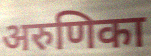
अरुणिका